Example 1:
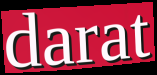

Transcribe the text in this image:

darat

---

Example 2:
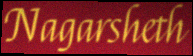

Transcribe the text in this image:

Nagarsheth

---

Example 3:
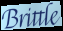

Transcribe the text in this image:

Brittle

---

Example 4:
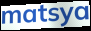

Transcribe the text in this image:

matsya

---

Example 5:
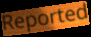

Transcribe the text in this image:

Reported